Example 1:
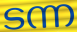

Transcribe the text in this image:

ടന്ന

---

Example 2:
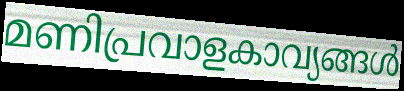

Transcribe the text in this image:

മണിപ്രവാളകാവ്യങ്ങൾ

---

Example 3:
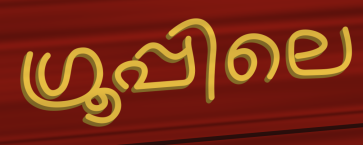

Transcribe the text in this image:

ഗ്രൂപ്പിലെ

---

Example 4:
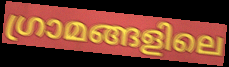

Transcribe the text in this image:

ഗ്രാമങ്ങളിലെ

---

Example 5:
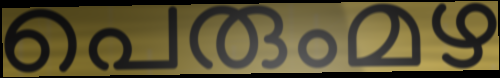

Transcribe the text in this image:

പെരുംമഴ